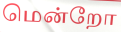
மென்றோ